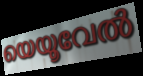
യെയൂവേൽ